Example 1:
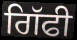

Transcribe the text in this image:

ਗਿੱਫੀ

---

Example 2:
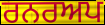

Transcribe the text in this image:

ਰਨਰਅਪ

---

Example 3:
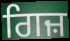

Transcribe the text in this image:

ਗਿਜ਼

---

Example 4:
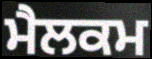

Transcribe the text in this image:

ਮੈਲਕਮ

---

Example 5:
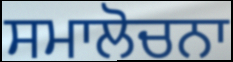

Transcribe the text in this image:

ਸਮਾਲੋਚਨਾ